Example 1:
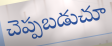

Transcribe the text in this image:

చెప్పబడుచూ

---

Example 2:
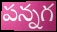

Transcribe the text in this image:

పన్నగ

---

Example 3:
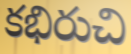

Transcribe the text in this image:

కభిరుచి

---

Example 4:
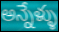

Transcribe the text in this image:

అన్నేళ్ళు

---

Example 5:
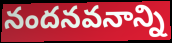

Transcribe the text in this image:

నందనవనాన్ని